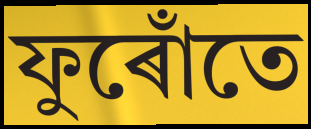
ফুৰোঁতে